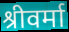
श्रीवर्मा